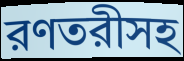
রণতরীসহ